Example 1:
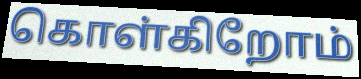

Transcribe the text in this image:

கொள்கிறோம்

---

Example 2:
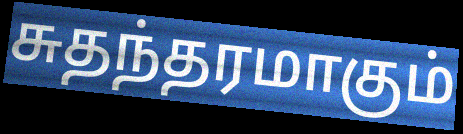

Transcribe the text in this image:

சுதந்தரமாகும்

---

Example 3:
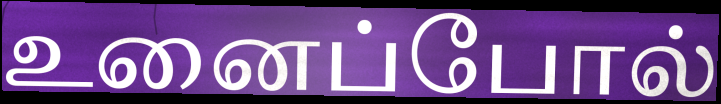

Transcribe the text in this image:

உனைப்போல்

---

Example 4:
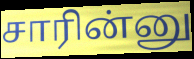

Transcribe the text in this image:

சாரின்னு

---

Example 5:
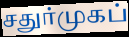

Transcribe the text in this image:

சதுர்முகப்